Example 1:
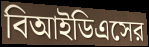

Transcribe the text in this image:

বিআইডিএসের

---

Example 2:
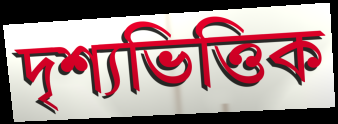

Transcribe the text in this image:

দৃশ্যভিত্তিক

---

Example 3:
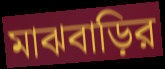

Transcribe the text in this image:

মাঝবাড়ির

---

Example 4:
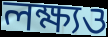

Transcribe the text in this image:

লক্ষ্যও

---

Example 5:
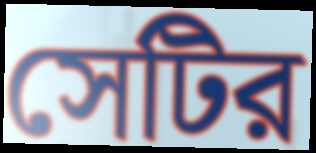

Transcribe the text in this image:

সেটির